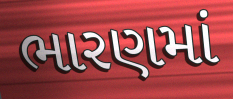
ભારણમાં